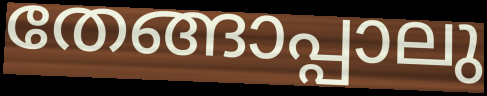
തേങ്ങാപ്പാലു